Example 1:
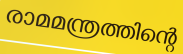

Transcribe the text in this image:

രാമമന്ത്രത്തിന്റെ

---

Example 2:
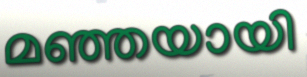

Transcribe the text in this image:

മഞ്ഞയായി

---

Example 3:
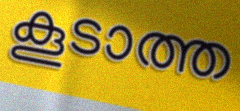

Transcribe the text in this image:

കൂടാത്ത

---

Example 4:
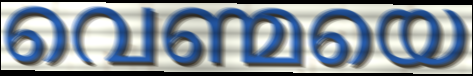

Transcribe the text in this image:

വെണ്മയെ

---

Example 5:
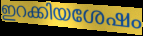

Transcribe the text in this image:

ഇറക്കിയശേഷം